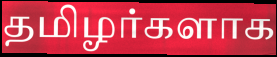
தமிழர்களாக